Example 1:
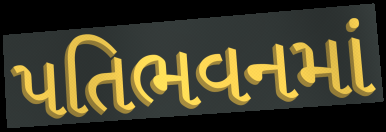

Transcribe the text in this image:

પતિભવનમાં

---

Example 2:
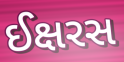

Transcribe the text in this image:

ઈક્ષરસ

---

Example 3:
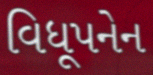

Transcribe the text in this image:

વિધૂપનેન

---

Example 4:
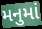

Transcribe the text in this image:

મનુમાં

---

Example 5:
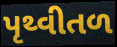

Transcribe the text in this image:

પૃથ્વીતળ